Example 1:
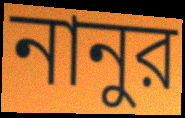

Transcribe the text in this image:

নানুর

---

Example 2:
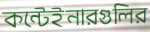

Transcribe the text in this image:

কন্টেইনারগুলির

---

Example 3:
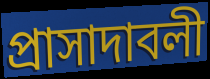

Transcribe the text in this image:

প্রাসাদাবলী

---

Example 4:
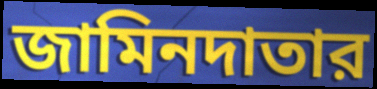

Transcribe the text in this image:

জামিনদাতার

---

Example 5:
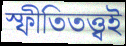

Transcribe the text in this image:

স্ফীতিতত্ত্বই